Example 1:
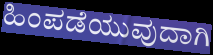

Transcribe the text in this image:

ಹಿಂಪಡೆಯುವುದಾಗಿ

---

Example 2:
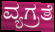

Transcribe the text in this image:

ವ್ಯಗ್ರತೆ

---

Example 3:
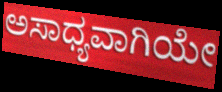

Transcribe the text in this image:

ಅಸಾಧ್ಯವಾಗಿಯೇ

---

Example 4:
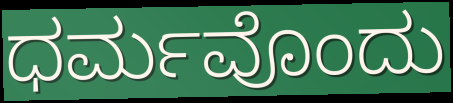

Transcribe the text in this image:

ಧರ್ಮವೊಂದು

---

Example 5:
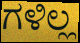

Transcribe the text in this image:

ಗಳಿಲ್ಲ